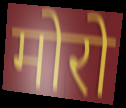
मोरो